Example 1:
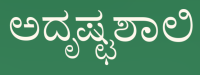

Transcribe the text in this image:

ಅದೃಷ್ಟಶಾಲಿ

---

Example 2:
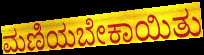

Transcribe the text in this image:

ಮಣಿಯಬೇಕಾಯಿತು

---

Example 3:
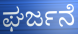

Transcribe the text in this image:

ಘರ್ಜನೆ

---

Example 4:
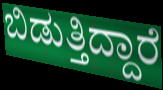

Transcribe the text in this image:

ಬಿಡುತ್ತಿದ್ದಾರೆ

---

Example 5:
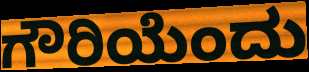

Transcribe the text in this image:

ಗೌರಿಯೆಂದು